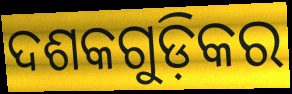
ଦଶକଗୁଡ଼ିକର